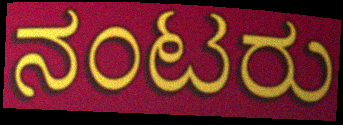
ನಂಟರು